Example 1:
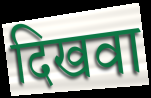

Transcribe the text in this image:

दिखवा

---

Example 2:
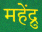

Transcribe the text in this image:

महेंद्रु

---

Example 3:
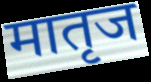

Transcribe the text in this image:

मातृज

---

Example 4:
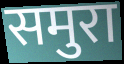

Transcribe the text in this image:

समुरा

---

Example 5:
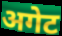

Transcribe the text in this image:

अगेट